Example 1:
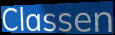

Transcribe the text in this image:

Classen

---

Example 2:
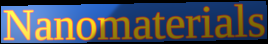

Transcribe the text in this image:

Nanomaterials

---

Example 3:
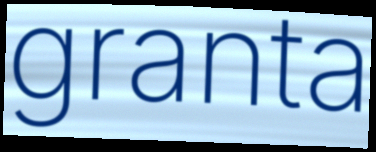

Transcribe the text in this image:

granta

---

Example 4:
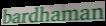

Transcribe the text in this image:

bardhaman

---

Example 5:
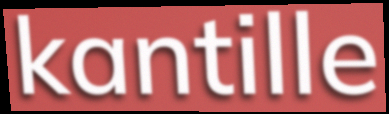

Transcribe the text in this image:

kantille